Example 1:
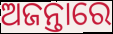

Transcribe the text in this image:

ଅଜନ୍ତାରେ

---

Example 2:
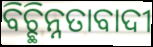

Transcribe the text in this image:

ବିଚ୍ଛିନ୍ନତାବାଦୀ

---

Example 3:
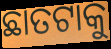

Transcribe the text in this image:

ଛାତଟାକୁ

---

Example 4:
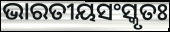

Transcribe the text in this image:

ଭାରତୀୟସଂସ୍କୃତଃ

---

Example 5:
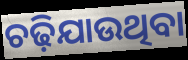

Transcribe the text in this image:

ଚଢ଼ିଯାଉଥିବା